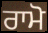
ਰਾਮੋ